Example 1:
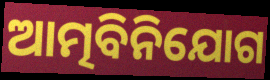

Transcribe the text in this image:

ଆତ୍ମବିନିଯୋଗ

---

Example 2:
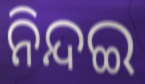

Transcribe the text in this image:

ନିନ୍ଦଇ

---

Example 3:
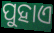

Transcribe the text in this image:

ପୁହାଏ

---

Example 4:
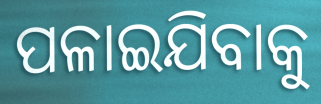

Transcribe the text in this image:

ପଳାଇଯିବାକୁ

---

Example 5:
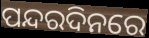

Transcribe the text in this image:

ପନ୍ଦରଦିନରେ